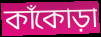
কাঁকোড়া